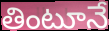
తింటూనే